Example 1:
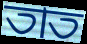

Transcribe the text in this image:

তাত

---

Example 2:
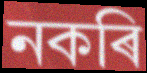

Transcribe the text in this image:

নকৰি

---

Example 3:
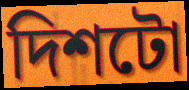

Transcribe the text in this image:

দিশটো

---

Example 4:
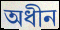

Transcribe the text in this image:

অধীন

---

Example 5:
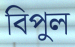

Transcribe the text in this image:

বিপুল